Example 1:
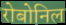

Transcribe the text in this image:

रोबोनिल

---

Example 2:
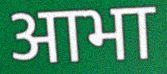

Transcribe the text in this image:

आभा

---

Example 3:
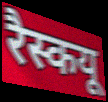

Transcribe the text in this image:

रैस्कयू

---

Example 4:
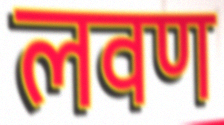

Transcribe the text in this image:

लवण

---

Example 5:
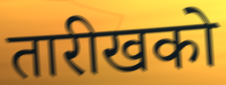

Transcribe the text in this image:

तारीखको